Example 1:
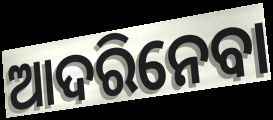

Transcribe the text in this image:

ଆଦରିନେବା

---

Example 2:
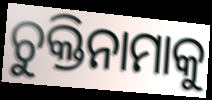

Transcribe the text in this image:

ଚୁକ୍ତିନାମାକୁ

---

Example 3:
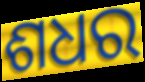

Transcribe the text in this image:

ଶଧର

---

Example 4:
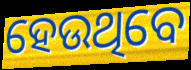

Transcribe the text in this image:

ହେଉଥିବେ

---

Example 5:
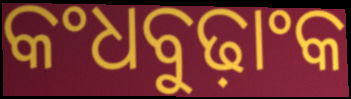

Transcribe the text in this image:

କଂଧବୁଢ଼ାଂକ